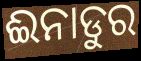
ଈନାଡୁର